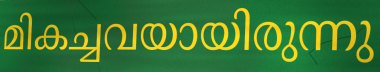
മികച്ചവയായിരുന്നു